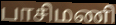
பாசிமணி